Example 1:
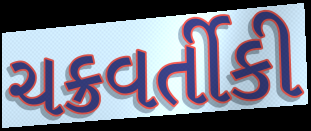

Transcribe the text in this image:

ચક્રવર્તીકી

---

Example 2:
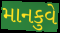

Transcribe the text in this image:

માનકુવે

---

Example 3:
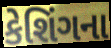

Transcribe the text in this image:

કેશિંગના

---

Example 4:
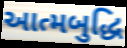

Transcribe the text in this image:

આત્મબુદ્ધિ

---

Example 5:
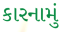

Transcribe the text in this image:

કારનામું